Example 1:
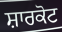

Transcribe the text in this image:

ਸ਼ਾਰਕੋਟ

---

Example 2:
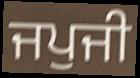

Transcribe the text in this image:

ਜਪੁਜੀ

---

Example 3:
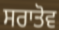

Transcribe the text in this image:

ਸਰਾਤੋਵ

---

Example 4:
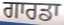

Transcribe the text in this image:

ਗਾਰਡਾ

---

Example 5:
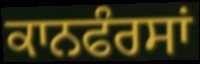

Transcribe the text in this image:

ਕਾਨਫੰਰਸਾਂ